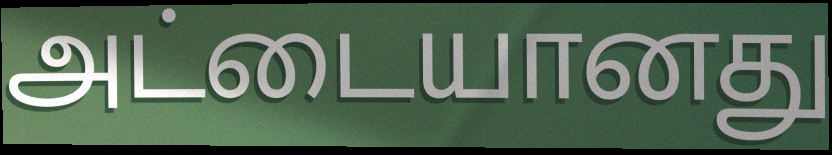
அட்டையானது